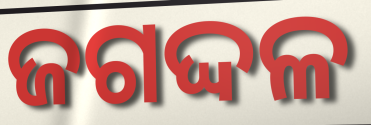
ଜଗଦ୍ଦଳ